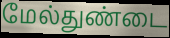
மேல்துண்டை